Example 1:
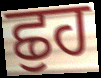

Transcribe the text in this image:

ਛੁਹ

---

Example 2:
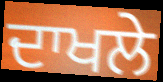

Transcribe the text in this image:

ਦਾਖਲੇ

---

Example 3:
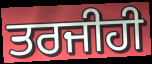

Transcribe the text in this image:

ਤਰਜੀਹੀ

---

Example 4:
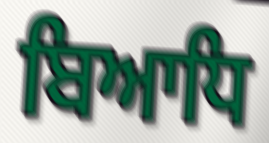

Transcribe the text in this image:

ਬਿਆਧਿ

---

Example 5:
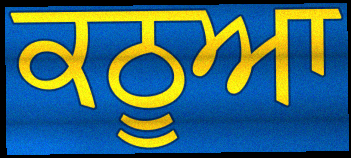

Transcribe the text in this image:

ਕਠੂਆ